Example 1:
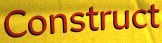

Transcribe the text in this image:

Construct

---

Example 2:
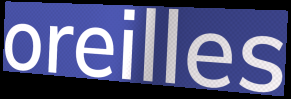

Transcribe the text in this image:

oreilles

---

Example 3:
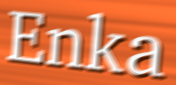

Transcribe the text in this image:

Enka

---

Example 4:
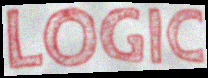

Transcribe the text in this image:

LOGIC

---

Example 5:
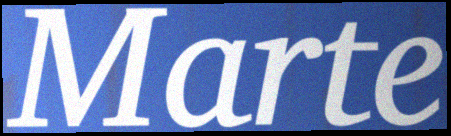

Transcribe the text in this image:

Marte